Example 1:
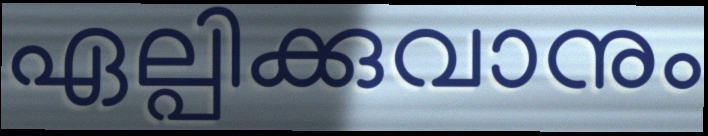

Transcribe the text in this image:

ഏല്പിക്കുവാനും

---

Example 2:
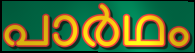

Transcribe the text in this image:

പാർഥം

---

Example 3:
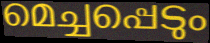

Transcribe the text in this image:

മെച്ചപ്പെടും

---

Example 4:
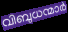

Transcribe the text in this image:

വിബുധന്മാർ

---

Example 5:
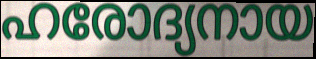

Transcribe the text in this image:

ഹരോദ്യനായ